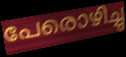
പേരൊഴിച്ചു